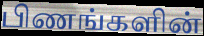
பிணங்களின்